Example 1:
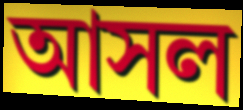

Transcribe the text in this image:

আসল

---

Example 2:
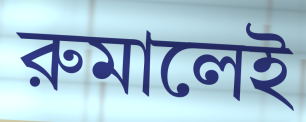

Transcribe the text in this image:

রুমালেই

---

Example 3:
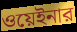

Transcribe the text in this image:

ওয়েইনার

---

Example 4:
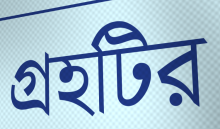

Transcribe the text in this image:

গ্রহটির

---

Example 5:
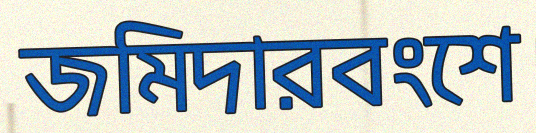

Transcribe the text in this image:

জমিদারবংশে